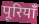
पूरियाँ